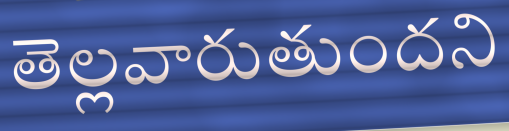
తెల్లవారుతుందని